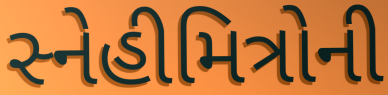
સ્નેહીમિત્રોની